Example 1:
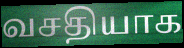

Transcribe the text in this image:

வசதியாக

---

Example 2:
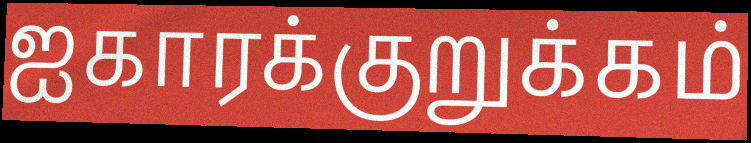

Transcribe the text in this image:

ஐகாரக்குறுக்கம்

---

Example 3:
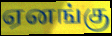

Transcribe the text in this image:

ஏனங்கு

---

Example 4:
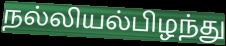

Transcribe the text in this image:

நல்லியல்பிழந்து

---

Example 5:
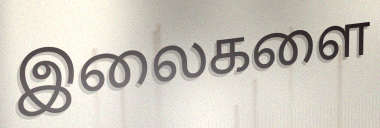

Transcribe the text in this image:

இலைகளை